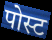
पोस्‍ट